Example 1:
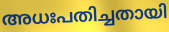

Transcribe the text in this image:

അധഃപതിച്ചതായി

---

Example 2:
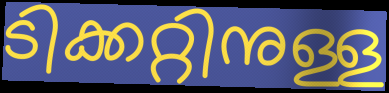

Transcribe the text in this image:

ടിക്കറ്റിനുള്ള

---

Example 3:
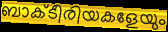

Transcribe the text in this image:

ബാക്ടീരിയകളേയും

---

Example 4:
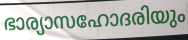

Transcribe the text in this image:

ഭാര്യാസഹോദരിയും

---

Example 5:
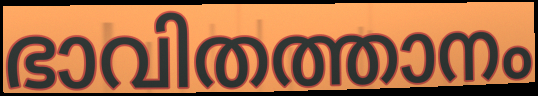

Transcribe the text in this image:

ഭാവിതത്താനം